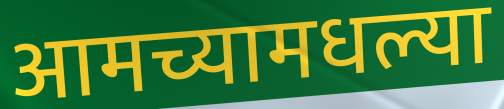
आमच्यामधल्या